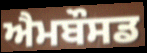
ਐਮਬੌਸਡ